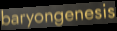
baryongenesis